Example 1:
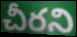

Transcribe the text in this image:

చీరని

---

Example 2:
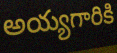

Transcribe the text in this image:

అయ్యగారికి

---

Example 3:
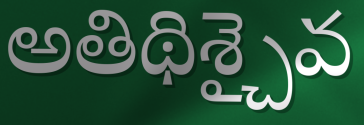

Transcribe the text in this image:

అతిథిశ్చైవ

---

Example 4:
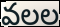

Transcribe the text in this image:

వలల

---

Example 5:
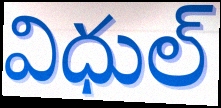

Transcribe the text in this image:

విధుల్